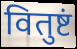
वितुष्टं